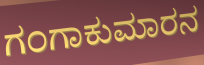
ಗಂಗಾಕುಮಾರನ